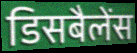
डिसबैलेंस